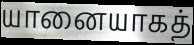
யானையாகத்